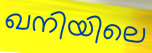
ഖനിയിലെ